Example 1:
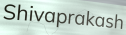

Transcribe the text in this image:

Shivaprakash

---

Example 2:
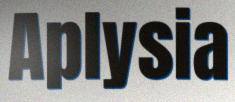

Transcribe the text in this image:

Aplysia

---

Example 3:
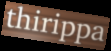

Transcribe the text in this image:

thirippa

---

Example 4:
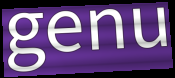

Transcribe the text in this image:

genu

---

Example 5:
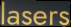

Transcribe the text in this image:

lasers